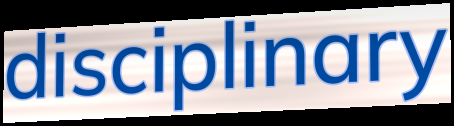
disciplinary